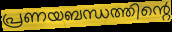
പ്രണയബന്ധത്തിന്റെ